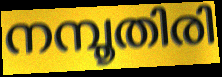
നമ്പൂതിരി